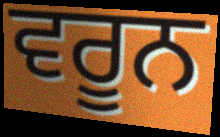
ਵਰੂਨ